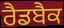
ਰੈਡਬੈਕ